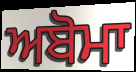
ਅਬੋਮਾ